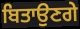
ਬਿਤਾਉਣਗੇ